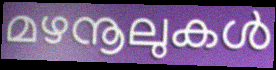
മഴനൂലുകൾ